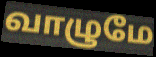
வாழுமே